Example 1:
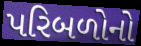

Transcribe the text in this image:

પરિબળોનો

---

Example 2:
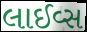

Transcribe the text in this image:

લાઈવ્સ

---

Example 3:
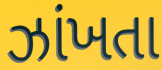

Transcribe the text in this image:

ઝાંખતા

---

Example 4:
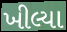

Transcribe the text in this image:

ખીલ્યા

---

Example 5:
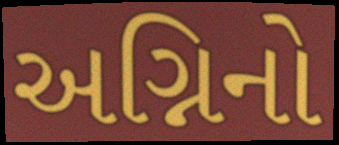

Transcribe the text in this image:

અગ્નિનો